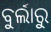
ବୁର୍ଲାରୁ